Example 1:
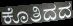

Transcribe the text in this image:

ಕೊತಿದದ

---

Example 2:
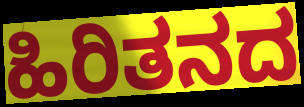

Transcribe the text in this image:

ಹಿರಿತನದ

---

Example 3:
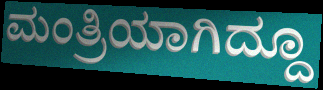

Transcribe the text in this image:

ಮಂತ್ರಿಯಾಗಿದ್ದೂ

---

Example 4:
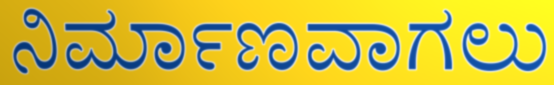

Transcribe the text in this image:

ನಿರ್ಮಾಣವಾಗಲು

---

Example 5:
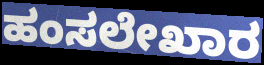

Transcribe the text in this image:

ಹಂಸಲೇಖಾರ